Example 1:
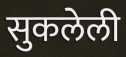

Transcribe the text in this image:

सुकलेली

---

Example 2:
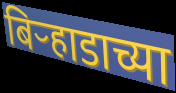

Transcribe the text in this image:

बिऱ्हाडाच्या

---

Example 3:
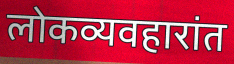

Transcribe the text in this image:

लोकव्यवहारांत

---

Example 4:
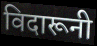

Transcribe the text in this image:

विदारूनी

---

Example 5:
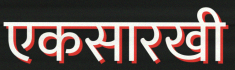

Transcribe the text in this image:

एकसारखी